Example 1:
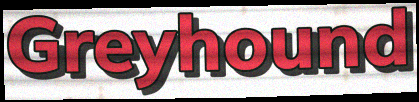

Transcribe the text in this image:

Greyhound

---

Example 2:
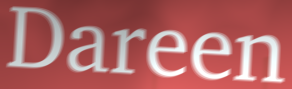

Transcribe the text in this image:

Dareen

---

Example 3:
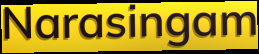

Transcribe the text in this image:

Narasingam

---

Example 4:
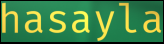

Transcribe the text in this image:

hasayla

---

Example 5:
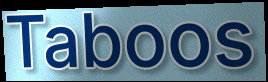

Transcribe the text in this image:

Taboos